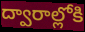
ద్వారాల్లోకి